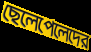
ছেলেপেলেদের